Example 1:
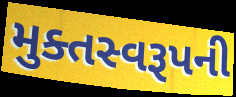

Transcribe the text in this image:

મુક્તસ્વરૂપની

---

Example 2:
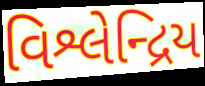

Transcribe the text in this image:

વિશ્લેન્દ્રિય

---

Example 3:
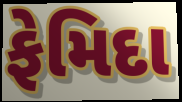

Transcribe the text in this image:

ફેમિદા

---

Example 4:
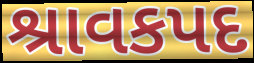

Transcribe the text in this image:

શ્રાવકપદ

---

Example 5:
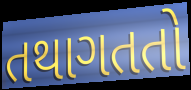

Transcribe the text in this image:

તથાગતતો